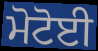
ਮੋਟੋਈ